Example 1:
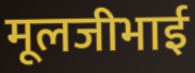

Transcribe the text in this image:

मूलजीभाई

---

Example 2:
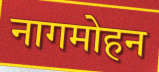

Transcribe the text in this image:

नागमोहन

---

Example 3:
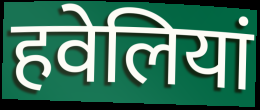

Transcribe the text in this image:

हवेलियां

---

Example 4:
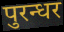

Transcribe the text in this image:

पुरन्धर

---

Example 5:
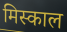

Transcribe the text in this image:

मिस्काल